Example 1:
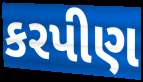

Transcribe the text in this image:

કરપીણ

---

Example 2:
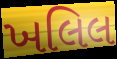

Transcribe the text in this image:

ખલિલ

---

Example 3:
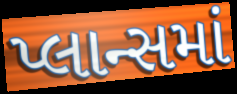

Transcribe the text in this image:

પ્લાન્સમાં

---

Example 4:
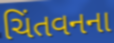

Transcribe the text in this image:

ચિંતવનના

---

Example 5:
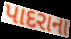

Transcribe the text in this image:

પાદરાના